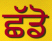
ਛੱਡੋ